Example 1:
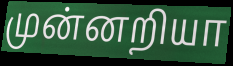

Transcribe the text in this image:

முன்னறியா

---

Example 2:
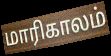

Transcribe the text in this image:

மாரிகாலம்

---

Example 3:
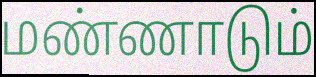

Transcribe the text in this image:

மண்ணாடும்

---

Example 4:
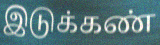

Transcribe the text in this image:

இடுக்கண்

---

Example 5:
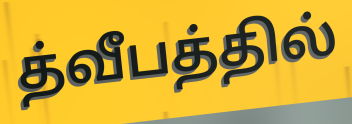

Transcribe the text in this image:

த்வீபத்தில்